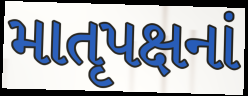
માતૃપક્ષનાં